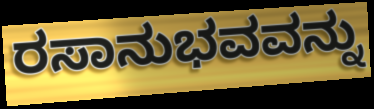
ರಸಾನುಭವವನ್ನು